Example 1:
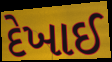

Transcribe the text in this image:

દેખાઈ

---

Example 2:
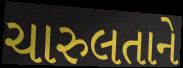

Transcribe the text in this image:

ચારુલતાને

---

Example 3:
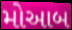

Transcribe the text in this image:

મોઆબ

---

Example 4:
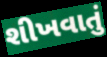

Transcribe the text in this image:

શીખવાતું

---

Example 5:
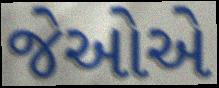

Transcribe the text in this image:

જેઓએ